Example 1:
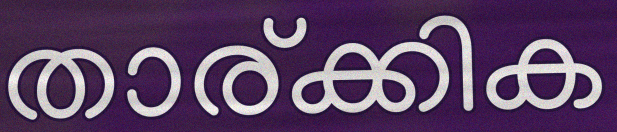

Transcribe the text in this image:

താര്ക്കിക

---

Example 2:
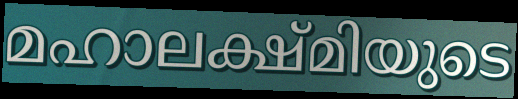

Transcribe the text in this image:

മഹാലക്ഷ്മിയുടെ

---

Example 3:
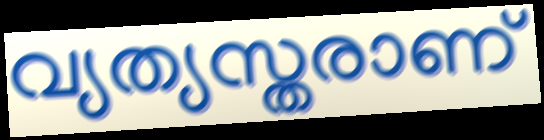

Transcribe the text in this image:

വ്യത്യസ്തരാണ്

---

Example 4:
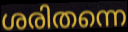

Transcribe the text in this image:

ശരിതന്നെ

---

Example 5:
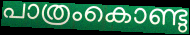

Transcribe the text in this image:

പാത്രംകൊണ്ടു